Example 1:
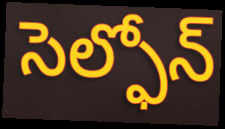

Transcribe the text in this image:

సెల్ఫోన్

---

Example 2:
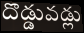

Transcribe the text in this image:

దొడ్డువడ్లు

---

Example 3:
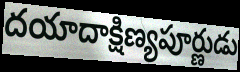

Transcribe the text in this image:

దయాదాక్షిణ్యపూర్ణుడు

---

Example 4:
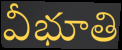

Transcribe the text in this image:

వీభూతి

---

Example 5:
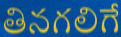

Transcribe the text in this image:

తినగలిగే